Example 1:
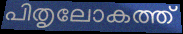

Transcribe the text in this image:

പിതൃലോകത്ത്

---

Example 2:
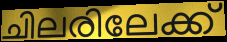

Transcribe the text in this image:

ചിലരിലേക്ക്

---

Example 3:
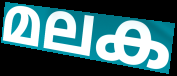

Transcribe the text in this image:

മലക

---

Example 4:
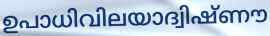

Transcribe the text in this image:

ഉപാധിവിലയാദ്വിഷ്ണൗ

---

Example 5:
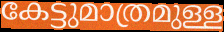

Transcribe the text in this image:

കേട്ടുമാത്രമുള്ള